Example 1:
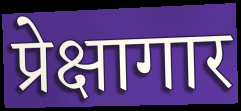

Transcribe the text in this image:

प्रेक्षागार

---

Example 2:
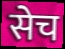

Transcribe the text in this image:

सेच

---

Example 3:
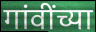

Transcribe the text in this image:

गांवींच्या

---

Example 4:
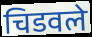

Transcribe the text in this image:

चिडवले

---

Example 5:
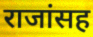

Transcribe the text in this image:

राजांसह